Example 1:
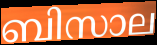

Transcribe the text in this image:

ബിസാല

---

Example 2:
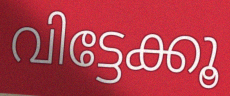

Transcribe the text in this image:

വിട്ടേക്കൂ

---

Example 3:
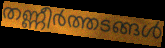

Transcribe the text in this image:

തണ്ണീർത്തടങ്ങൾ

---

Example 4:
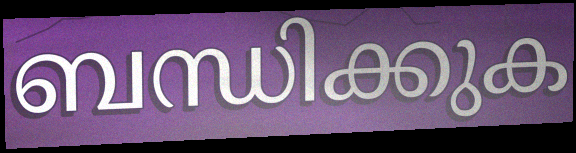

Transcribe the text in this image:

ബന്ധിക്കുക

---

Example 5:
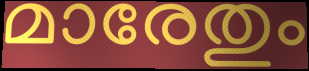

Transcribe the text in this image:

മാരേതും